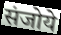
संजोये